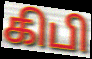
கிபி